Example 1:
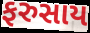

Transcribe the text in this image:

ફરુસાય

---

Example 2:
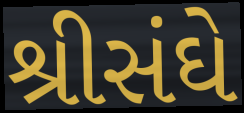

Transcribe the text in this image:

શ્રીસંઘે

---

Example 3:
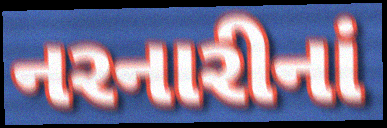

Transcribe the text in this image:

નરનારીનાં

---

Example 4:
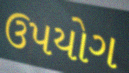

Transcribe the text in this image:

ઉપયોગ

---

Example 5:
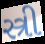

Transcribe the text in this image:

સ્ત્રી